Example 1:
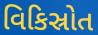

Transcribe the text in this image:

વિકિસ્રોત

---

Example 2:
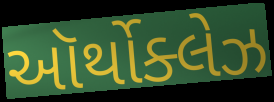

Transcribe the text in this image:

ઑર્થોક્લેઝ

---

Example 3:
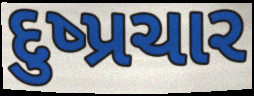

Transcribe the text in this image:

દુષ્પ્રચાર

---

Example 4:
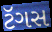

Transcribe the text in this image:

ટૅગસ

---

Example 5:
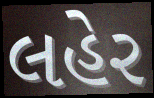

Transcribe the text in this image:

લહેર